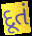
દૂતં